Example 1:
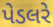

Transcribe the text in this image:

પેડલરે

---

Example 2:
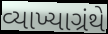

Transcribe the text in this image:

વ્યાખ્યાગ્રંથે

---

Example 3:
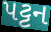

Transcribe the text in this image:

પટ્ટન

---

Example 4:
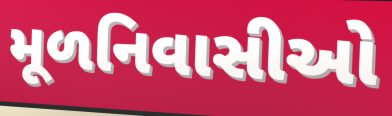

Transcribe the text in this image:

મૂળનિવાસીઓ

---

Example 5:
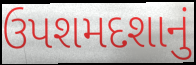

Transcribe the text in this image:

ઉપશમદશાનું